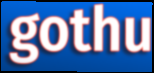
gothu